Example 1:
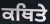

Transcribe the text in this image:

ਕਥਿਤੇ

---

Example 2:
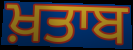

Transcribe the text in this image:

ਖ਼ਤਾਬ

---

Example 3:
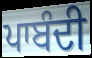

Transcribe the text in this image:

ਪਾਬੰਦੀ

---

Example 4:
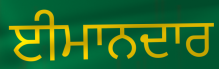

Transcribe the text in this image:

ਈਮਾਨਦਾਰ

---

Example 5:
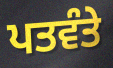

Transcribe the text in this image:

ਪਤਵੰਤੇ